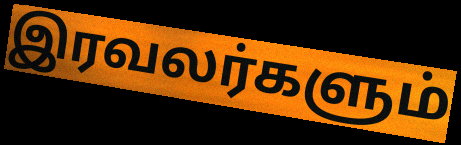
இரவலர்களும்